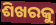
ଶିଖରକୁ